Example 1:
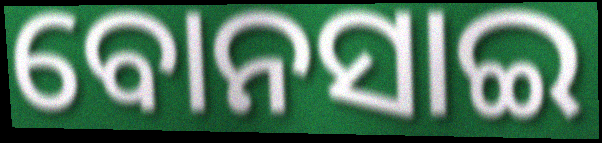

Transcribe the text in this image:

ବୋନସାଇ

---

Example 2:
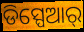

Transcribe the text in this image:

ଡିସ୍ପେଆର୍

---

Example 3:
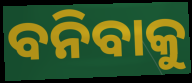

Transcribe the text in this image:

ବନିବାକୁ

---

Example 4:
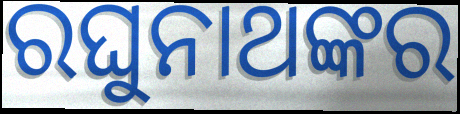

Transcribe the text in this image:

ରଘୁନାଥଙ୍କର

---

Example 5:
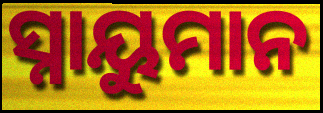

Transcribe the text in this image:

ସ୍ନାୟୁମାନ